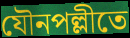
যৌনপল্লীতে